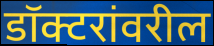
डॉक्टरांवरील